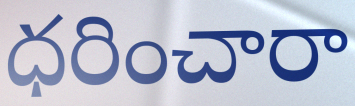
ధరించారా